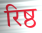
रिष्ठ